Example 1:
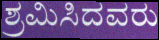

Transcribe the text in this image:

ಶ್ರಮಿಸಿದವರು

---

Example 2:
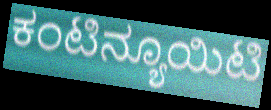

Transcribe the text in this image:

ಕಂಟಿನ್ಯೂಯಿಟಿ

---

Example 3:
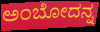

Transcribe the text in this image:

ಅಂಬೋದನ್ನ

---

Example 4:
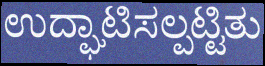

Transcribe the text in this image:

ಉದ್ಘಾಟಿಸಲ್ಪಟ್ಟಿತು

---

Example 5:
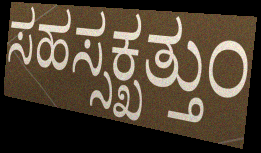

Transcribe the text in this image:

ಸಹಸ್ಸಕ್ಖತ್ತುಂ